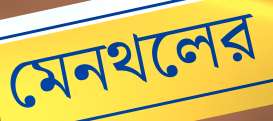
মেনথলের